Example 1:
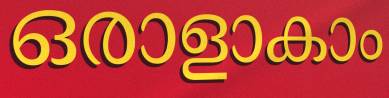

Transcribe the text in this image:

ഒരാളാകാം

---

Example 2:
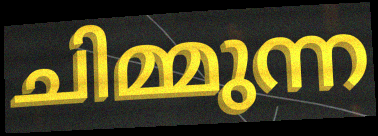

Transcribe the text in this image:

ചിമ്മുന്ന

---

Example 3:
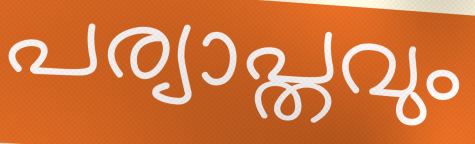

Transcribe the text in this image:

പര്യാപ്തവും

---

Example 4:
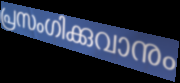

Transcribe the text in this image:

പ്രസംഗിക്കുവാനും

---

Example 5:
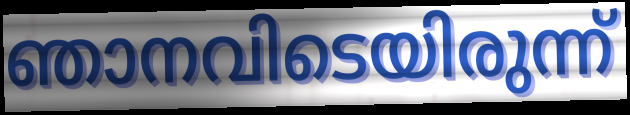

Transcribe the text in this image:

ഞാനവിടെയിരുന്ന്